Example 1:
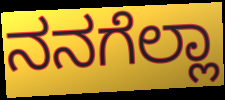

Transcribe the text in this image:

ನನಗೆಲ್ಲಾ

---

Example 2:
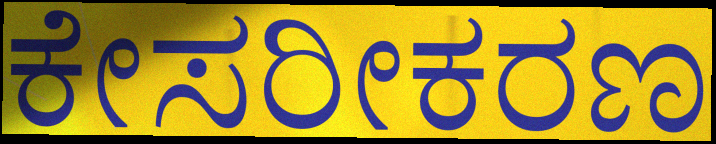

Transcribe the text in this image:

ಕೇಸರೀಕರಣ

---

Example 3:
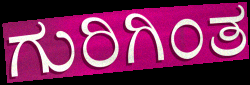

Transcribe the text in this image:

ಗುರಿಗಿಂತ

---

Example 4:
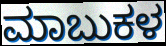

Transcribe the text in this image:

ಮಾಬುಕಳ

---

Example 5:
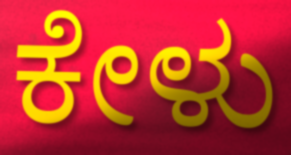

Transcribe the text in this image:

ಕೇಳು